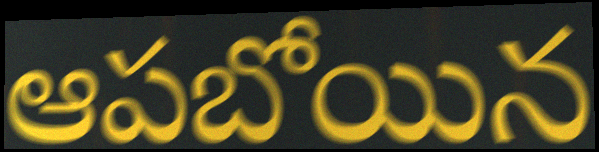
ఆపబోయిన